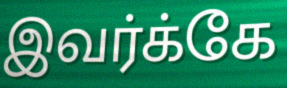
இவர்க்கே